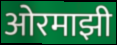
ओरमाझी